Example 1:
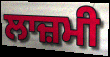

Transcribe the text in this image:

ਲਾਜ਼ਮੀ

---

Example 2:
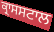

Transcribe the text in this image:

ਕ੍ਰਾਸਸਟਾਲ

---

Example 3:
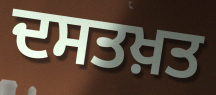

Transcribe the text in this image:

ਦਸਤਖ਼ਤ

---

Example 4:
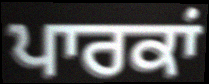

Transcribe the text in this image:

ਪਾਰਕਾਂ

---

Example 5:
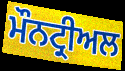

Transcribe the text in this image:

ਮੌਨਟ੍ਰੀਅਲ